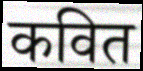
कवित